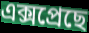
এক্সপ্ৰেছে